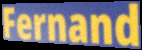
Fernand